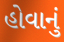
હોવાનું